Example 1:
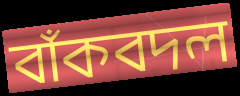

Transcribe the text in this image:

বাঁকবদল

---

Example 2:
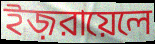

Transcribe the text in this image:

ইজ়রায়েলে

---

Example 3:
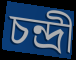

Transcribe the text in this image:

চন্দ্রী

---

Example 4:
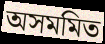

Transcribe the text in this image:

অসমমিত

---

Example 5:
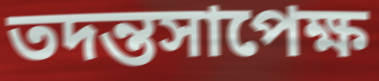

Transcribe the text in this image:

তদন্তসাপেক্ষ